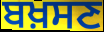
ਬਖ਼ਸਣ